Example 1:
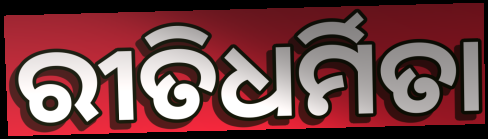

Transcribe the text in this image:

ରୀତିଧର୍ମିତା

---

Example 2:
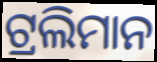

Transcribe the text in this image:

ଟ୍ରଲିମାନ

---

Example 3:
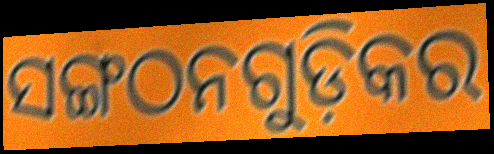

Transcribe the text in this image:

ସଙ୍ଗଠନଗୁଡ଼ିକର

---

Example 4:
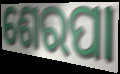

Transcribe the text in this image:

ଶେରପା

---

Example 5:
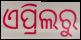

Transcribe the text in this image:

ଏପ୍ରିଲରୁ